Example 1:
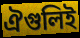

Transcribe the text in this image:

ঐগুলিই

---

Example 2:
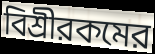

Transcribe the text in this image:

বিশ্রীরকমের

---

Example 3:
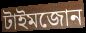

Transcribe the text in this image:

টাইমজোন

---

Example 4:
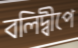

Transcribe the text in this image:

বলিদ্বীপে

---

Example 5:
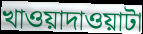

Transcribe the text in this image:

খাওয়াদাওয়াটা